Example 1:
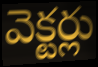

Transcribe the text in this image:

వెక్టర్లు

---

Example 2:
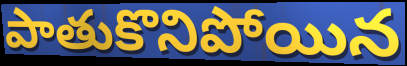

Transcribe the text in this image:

పాతుకొనిపోయిన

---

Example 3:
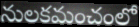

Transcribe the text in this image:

నులకమంచంలో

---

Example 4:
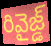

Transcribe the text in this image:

రివైజ్డ్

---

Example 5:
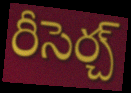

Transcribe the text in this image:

రీసెర్చ్